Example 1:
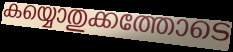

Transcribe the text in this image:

കയ്യൊതുക്കത്തോടെ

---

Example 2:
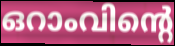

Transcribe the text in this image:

ഒറാംവിന്റെ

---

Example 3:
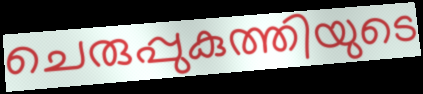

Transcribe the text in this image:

ചെരുപ്പുകുത്തിയുടെ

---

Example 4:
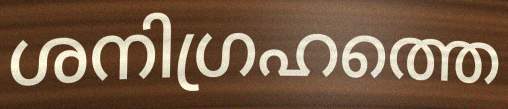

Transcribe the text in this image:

ശനിഗ്രഹത്തെ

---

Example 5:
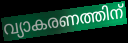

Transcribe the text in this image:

വ്യാകരണത്തിന്